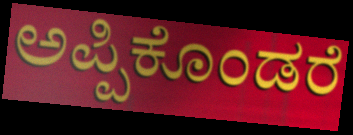
ಅಪ್ಪಿಕೊಂಡರೆ